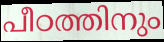
പീഠത്തിനും